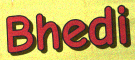
Bhedi